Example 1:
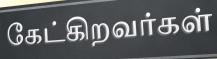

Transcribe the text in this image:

கேட்கிறவர்கள்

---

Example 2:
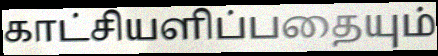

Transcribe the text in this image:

காட்சியளிப்பதையும்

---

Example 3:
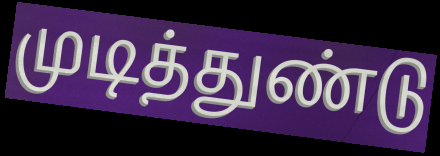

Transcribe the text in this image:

முடித்துண்டு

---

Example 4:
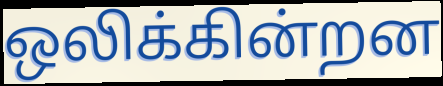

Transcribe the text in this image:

ஒலிக்கின்றன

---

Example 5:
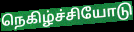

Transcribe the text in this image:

நெகிழ்ச்சியோடு